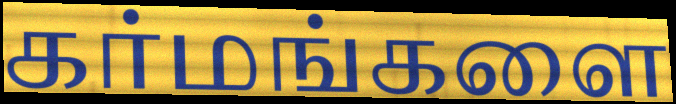
கர்மங்களை